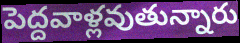
పెద్దవాళ్లవుతున్నారు